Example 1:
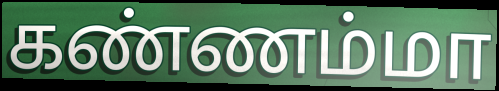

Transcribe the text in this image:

கண்ணம்மா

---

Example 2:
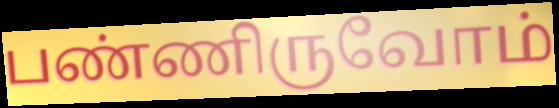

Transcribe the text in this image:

பண்ணிருவோம்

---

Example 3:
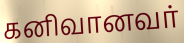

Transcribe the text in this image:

கனிவானவர்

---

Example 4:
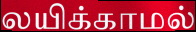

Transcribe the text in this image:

லயிக்காமல்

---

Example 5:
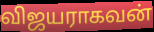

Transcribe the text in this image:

விஜயராகவன்